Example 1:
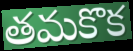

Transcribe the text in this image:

తమకొక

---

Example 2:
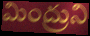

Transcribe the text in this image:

మింద్రుని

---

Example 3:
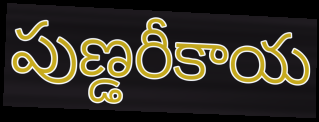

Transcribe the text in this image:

పుణ్డరీకాయ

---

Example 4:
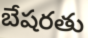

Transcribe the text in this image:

బేషరతు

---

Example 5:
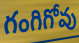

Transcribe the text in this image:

గంగిగోవు